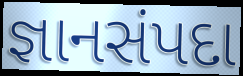
જ્ઞાનસંપદા